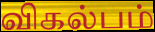
விகல்பம்